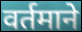
वर्तमाने